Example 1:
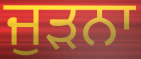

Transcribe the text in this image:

ਜੁੜਨਾ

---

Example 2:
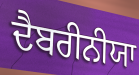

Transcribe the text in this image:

ਦੈਬਰੀਨੀਯਾ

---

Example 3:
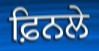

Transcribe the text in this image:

ਫ਼ਿਨਲੇ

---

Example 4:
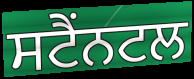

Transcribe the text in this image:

ਸਟੈਂਨਟਲ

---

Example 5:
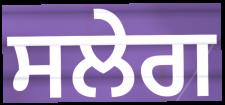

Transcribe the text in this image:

ਸਲੇਗ